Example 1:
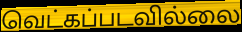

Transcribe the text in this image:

வெட்கப்படவில்லை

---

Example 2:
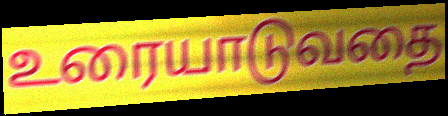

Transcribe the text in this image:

உரையாடுவதை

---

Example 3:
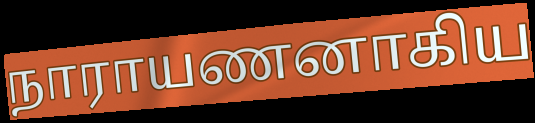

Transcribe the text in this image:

நாராயணனாகிய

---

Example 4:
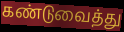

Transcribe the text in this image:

கண்டுவைத்து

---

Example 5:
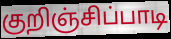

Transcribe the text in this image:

குறிஞ்சிப்பாடி